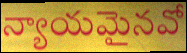
న్యాయమైనవో